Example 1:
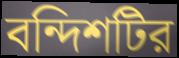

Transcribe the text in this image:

বন্দিশটির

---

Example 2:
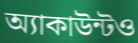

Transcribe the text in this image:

অ্যাকাউন্টও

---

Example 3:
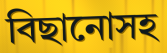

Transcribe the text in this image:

বিছানোসহ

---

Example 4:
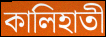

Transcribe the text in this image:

কালিহাতী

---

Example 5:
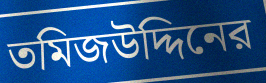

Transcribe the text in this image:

তমিজউদ্দিনের